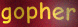
gopher